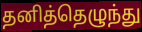
தனித்தெழுந்து